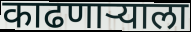
काढणार्‍याला